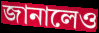
জানালেও